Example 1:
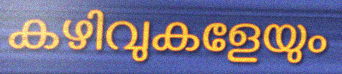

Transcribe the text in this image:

കഴിവുകളേയും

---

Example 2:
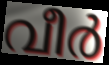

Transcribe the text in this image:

വീർ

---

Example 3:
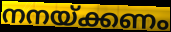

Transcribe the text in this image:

നനയ്ക്കണം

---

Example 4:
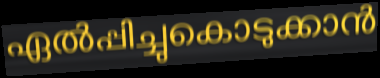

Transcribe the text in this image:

ഏൽപ്പിച്ചുകൊടുക്കാൻ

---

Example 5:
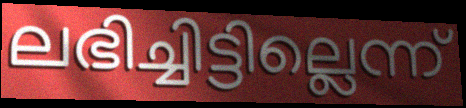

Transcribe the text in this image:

ലഭിച്ചിട്ടില്ലെന്ന്